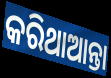
କରିଥାଆନ୍ତା